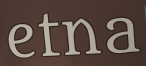
etna